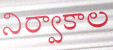
నిర్వాకాల